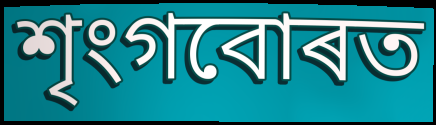
শৃংগবোৰত